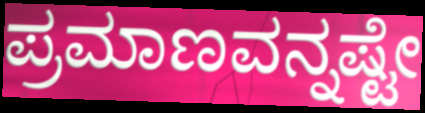
ಪ್ರಮಾಣವನ್ನಷ್ಟೇ